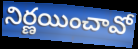
నిర్ణయించావో